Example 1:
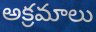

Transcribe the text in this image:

అక్రమాలు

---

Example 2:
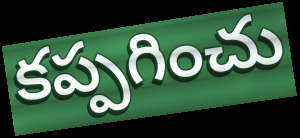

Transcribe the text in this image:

కప్పగించు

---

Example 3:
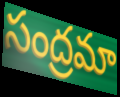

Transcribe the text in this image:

సంద్రమా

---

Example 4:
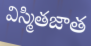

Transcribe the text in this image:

విస్మితజాత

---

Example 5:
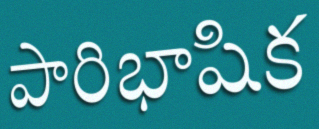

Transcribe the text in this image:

పారిభాషిక